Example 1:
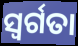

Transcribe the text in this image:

ସ୍ବର୍ଗତା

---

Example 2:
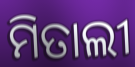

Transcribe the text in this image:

ମିତାଲୀ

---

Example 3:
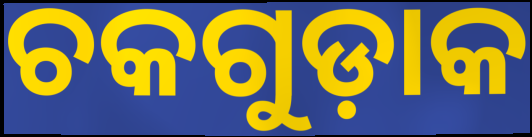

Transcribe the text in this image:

ଚକଗୁଡ଼ାକ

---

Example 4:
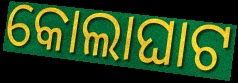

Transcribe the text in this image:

କୋଲାଘାଟ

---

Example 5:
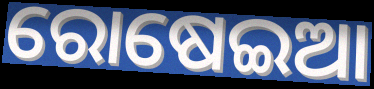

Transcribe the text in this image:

ରୋଷେଇଆ